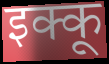
इक्कू